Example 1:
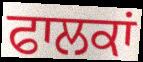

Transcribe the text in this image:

ਫਾਲਕਾਂ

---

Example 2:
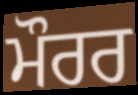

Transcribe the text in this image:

ਮੌਰਰ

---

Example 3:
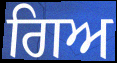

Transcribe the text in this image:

ਗਿਅ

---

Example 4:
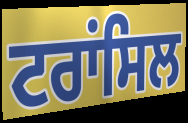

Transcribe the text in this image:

ਟਰਾਂਸਿਲ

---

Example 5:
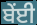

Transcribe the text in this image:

ਬੇਂਈ